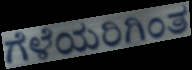
ಗೆಳೆಯರಿಗಿಂತ